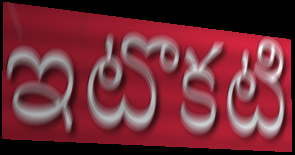
ఇటొకటి